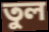
তুল